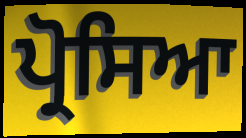
ਪ੍ਰੋਸਿਆ